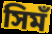
সিমঁ